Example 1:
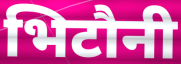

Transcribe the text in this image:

भिटौनी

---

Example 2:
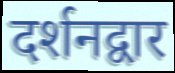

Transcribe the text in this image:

दर्शनद्वार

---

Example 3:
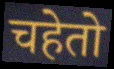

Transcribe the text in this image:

चहेतो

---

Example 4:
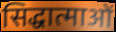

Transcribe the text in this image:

सिद्धात्माओं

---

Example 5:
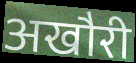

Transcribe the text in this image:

अखौरी